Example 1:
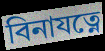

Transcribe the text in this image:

বিনাযত্নে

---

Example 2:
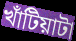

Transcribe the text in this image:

খাঁটিয়াটা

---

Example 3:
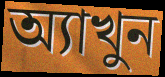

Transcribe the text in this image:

অ্যাখুন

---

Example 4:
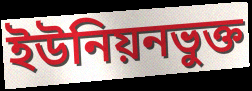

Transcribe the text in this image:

ইউনিয়নভুক্ত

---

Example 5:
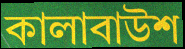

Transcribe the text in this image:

কালাবাউশ